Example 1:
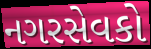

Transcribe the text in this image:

નગરસેવકો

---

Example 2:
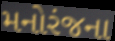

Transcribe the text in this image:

મનોરંજના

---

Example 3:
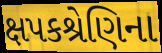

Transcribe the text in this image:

ક્ષપકશ્રેણિના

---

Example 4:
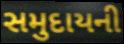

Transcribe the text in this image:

સમુદાયની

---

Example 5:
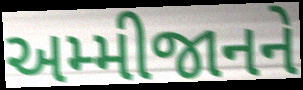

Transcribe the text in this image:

અમ્મીજાનને